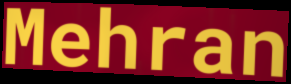
Mehran